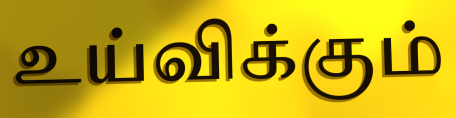
உய்விக்கும்